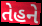
તેહને